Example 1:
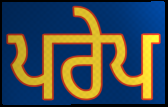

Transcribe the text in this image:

ਪਰੇਪ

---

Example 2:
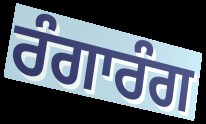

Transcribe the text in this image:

ਰੰਗਾਰੰਗ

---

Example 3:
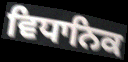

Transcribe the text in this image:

ਵਿਧਾਨਿਕ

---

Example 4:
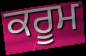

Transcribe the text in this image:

ਕਰੂਮ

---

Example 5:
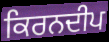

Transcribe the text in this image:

ਕਿਰਨਦੀਪ